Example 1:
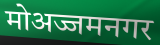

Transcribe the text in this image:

मोअज्जमनगर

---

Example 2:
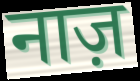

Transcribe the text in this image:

नाज़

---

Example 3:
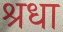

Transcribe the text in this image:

श्रधा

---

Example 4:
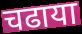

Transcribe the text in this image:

चढाया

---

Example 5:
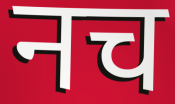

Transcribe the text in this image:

नच